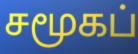
சமூகப்